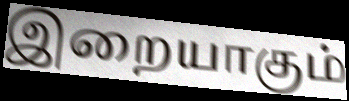
இறையாகும்